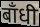
बाँधी